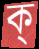
ক্